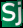
Sj